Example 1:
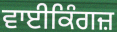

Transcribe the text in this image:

ਵਾਈਕਿੰਗਜ਼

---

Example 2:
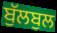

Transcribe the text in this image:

ਬੁੱਲਬੁਲ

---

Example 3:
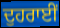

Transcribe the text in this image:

ਦੁਹਰਾਈਂ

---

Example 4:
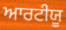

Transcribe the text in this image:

ਆਰਟੀਯੂ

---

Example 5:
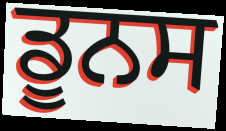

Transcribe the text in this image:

ਡੂਨਸ